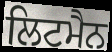
ਲਿਟਮੈਨ